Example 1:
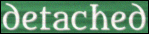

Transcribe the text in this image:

detached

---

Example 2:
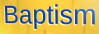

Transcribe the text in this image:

Baptism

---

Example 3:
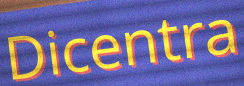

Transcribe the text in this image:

Dicentra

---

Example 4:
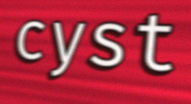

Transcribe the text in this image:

cyst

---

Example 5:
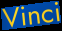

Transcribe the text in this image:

Vinci